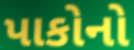
પાકોનો